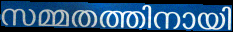
സമ്മതത്തിനായി